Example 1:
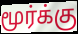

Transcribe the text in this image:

மூர்க்கு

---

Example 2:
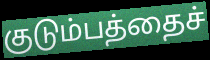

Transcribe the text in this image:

குடும்பத்தைச்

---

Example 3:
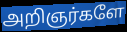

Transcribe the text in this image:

அறிஞர்களே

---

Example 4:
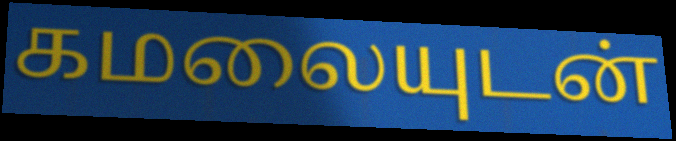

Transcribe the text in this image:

கமலையுடன்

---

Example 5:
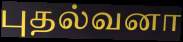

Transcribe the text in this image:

புதல்வனா